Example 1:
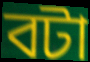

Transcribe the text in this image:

বটা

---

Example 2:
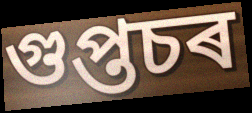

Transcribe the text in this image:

গুপ্তচৰ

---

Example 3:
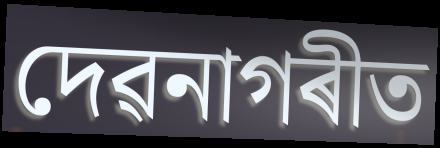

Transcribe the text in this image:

দেৱনাগৰীত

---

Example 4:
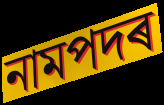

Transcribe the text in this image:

নামপদৰ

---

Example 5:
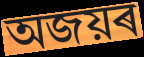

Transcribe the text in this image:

অজয়ৰ